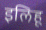
इलिहू